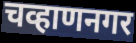
चव्हाणनगर